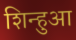
शिन्हुआ